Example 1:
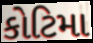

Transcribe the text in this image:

કોટિમા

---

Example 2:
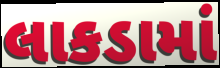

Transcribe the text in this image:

લાકડામાં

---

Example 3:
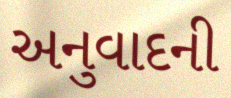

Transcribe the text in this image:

અનુવાદની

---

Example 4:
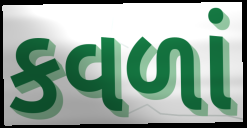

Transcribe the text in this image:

કવળાં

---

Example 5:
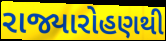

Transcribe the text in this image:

રાજ્યારોહણથી